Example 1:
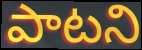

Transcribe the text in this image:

పాటని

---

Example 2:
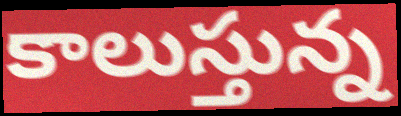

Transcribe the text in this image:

కాలుస్తున్న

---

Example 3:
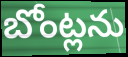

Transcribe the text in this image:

బోంట్లను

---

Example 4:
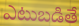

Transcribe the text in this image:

ఎటుబడితే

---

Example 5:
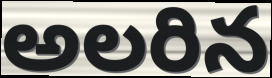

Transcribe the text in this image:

అలరిన